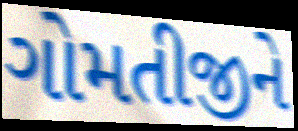
ગોમતીજીને